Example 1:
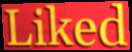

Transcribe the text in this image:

Liked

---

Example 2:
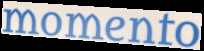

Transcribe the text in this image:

momento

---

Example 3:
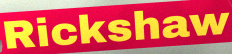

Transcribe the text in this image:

Rickshaw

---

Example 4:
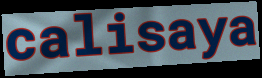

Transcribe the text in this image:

calisaya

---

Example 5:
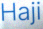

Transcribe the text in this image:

Haji